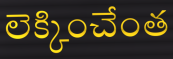
లెక్కించేంత